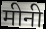
मीनी